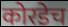
कोरडेच